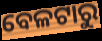
ବେଳଟାରୁ